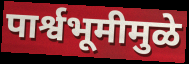
पार्श्वभूमीमुळे